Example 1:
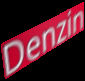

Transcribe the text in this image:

Denzin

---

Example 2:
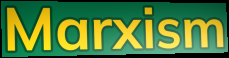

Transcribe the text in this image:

Marxism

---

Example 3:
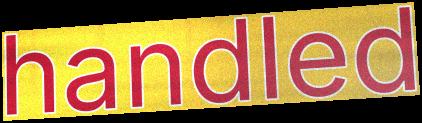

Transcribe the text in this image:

handled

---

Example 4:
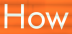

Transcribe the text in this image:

How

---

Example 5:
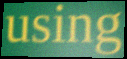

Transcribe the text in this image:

using